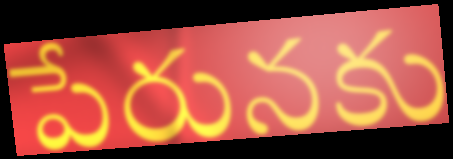
పేరునకు